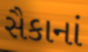
સૈકાનાં